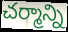
చర్మాన్ని